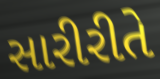
સારીરીતે